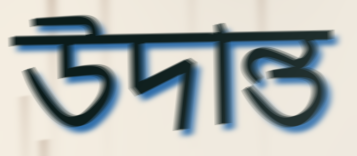
উদান্ত